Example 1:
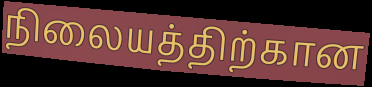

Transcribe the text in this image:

நிலையத்திற்கான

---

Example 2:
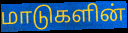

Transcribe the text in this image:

மாடுகளின்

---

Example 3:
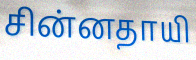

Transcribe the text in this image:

சின்னதாயி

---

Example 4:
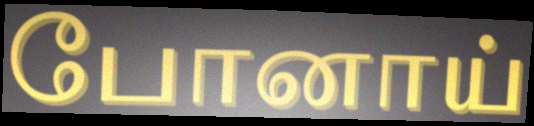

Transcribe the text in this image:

போனாய்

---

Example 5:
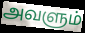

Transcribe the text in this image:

அவளும்